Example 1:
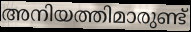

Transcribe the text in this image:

അനിയത്തിമാരുണ്ട്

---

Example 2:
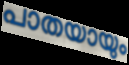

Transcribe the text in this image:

പാതയായും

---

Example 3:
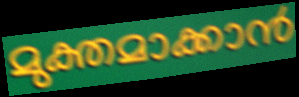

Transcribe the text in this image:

മുക്തമാക്കാൻ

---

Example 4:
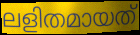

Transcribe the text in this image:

ലളിതമായത്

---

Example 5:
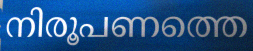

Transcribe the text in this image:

നിരൂപണത്തെ